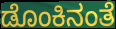
ಡೊಂಕಿನಂತೆ